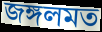
জঙ্গলমত